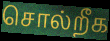
சொல்றீக